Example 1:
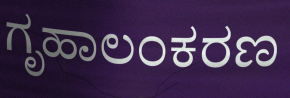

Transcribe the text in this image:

ಗೃಹಾಲಂಕರಣ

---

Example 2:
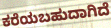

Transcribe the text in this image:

ಕರೆಯಬಹುದಾಗಿದೆ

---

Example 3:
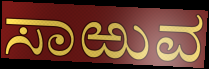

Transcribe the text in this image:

ಸಾಱುವ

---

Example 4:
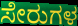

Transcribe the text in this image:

ಸೇರುಗಳ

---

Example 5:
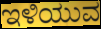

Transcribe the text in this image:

ಇಳಿಯುವ